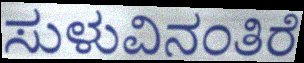
ಸುಳುವಿನಂತಿರೆ